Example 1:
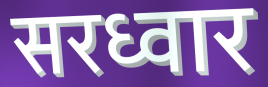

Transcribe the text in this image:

सरध्वार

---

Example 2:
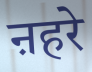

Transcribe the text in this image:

ऩहरे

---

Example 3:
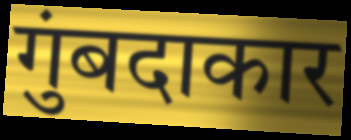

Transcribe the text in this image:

गुंबदाकार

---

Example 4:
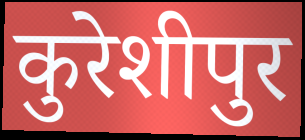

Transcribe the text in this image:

कुरेशीपुर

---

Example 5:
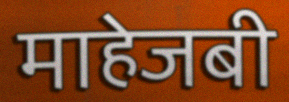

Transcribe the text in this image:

माहेजबी